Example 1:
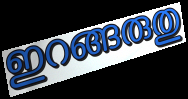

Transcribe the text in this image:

ഇറങ്ങരുതു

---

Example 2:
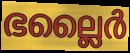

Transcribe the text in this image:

ഭല്ലൈർ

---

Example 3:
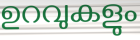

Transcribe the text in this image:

ഉറവുകളും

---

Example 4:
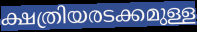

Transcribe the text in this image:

ക്ഷത്രിയരടക്കമുള്ള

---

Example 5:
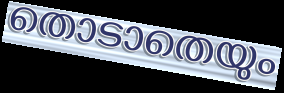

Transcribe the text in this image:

തൊടാതെയും